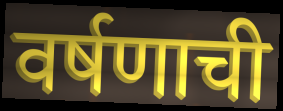
वर्षणाची